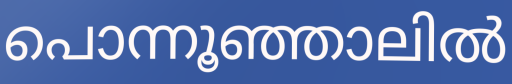
പൊന്നൂഞ്ഞാലിൽ